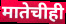
मातेचीही